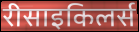
रीसाइकिलर्स